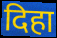
दिहा